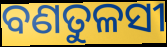
ବଣତୁଳସୀ